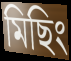
মিছিং